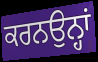
ਕਰਨਉਨ੍ਹਾਂ